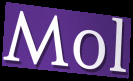
Mol